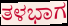
ತಳಭಾಗ